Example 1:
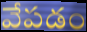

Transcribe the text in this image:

వేపడం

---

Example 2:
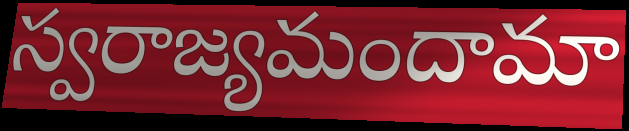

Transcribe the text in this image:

స్వరాజ్యమందామా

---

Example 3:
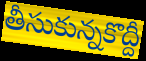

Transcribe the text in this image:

తీసుకున్నకొద్దీ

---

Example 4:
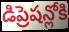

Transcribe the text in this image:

డిప్రెషన్లోకి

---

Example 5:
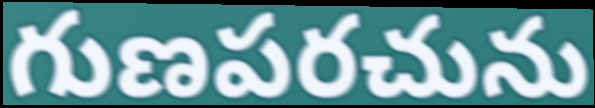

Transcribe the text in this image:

గుణపరచును